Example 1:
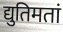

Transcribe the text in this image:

द्युतिमतां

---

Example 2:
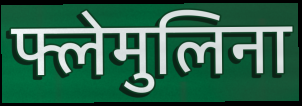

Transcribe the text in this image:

फ्लेमुलिना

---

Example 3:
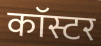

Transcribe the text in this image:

कॉस्टर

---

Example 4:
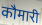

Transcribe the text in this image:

कौमारी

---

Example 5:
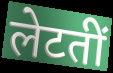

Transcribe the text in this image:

लेटतीं